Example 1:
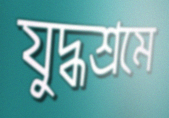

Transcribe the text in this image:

যুদ্ধশ্রমে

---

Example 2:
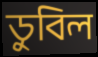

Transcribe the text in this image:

ডুবিল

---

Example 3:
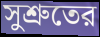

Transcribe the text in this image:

সুশ্রুতের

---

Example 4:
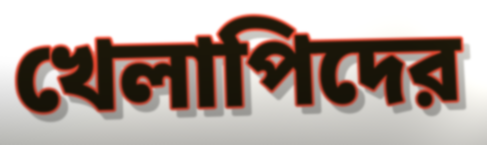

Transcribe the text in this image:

খেলাপিদের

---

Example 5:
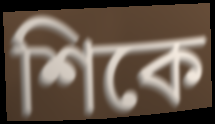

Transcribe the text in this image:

শিকে